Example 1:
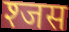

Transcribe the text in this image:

श्जस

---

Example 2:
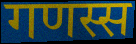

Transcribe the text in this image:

गणस्स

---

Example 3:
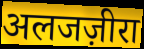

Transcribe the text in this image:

अलजज़ीरा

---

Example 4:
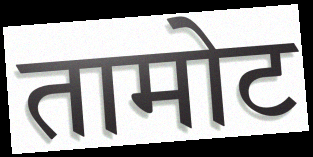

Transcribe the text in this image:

तामोट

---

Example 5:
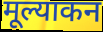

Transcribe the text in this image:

मूल्याकन